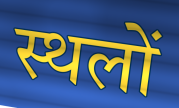
स्थलों